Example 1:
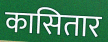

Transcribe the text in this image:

कासितार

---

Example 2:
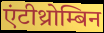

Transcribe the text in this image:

एंटीथ्रोम्बिन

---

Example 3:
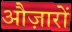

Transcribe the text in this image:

औज़ारों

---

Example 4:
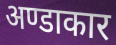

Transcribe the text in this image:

अण्डाकार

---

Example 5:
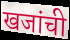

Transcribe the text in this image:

खजांची